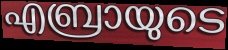
എബ്രായുടെ